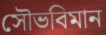
সৌভবিমান